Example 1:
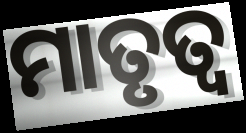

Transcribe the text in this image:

ମାତୃତ୍ୱ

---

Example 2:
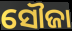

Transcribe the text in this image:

ସୌଜା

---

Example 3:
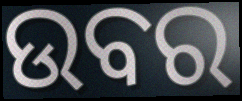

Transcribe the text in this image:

ଉବର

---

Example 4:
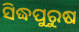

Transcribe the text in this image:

ସିଦ୍ଧପୁରୁଷ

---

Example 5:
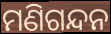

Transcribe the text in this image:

ମଣିଗନ୍ଦନ